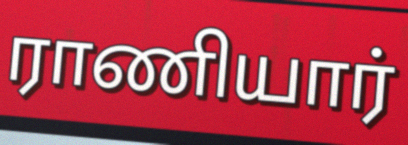
ராணியார்